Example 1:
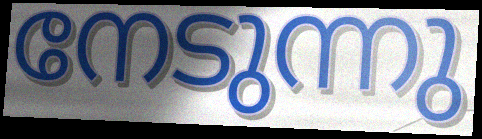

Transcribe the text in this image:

നേടുന്നു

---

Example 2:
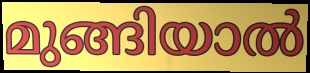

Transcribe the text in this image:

മുങ്ങിയാൽ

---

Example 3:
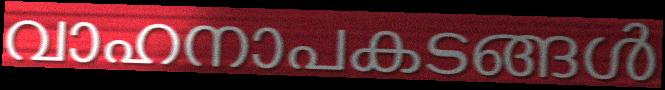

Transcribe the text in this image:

വാഹനാപകടങ്ങൾ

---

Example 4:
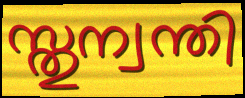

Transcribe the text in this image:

സ്തുന്വന്തി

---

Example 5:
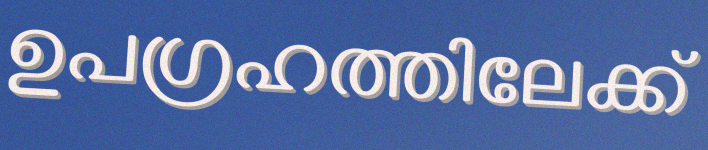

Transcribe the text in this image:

ഉപഗ്രഹത്തിലേക്ക്